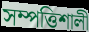
সম্পত্তিশালী